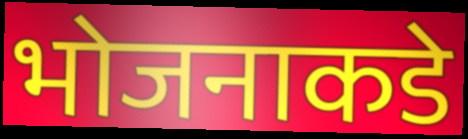
भोजनाकडे